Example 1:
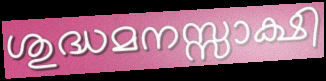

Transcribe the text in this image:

ശുദ്ധമനസ്സാക്ഷി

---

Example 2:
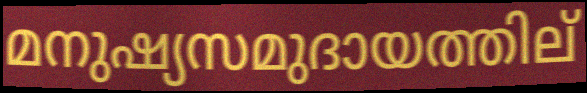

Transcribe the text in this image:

മനുഷ്യസമുദായത്തില്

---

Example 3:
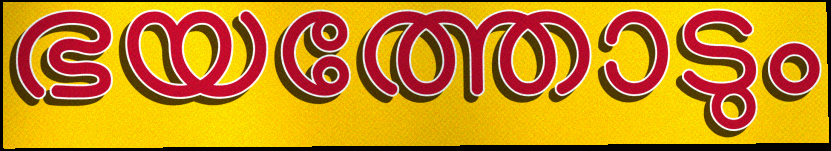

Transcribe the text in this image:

ഭയത്തോടും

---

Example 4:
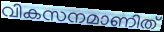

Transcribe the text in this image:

വികസനമാണിത്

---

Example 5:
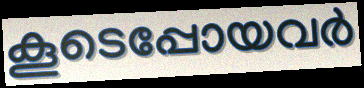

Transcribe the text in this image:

കൂടെപ്പോയവർ